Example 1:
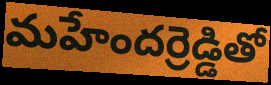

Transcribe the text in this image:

మహేందర్రెడ్డితో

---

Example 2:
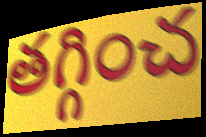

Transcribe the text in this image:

తగ్గించ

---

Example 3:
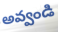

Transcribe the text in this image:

అవ్వండి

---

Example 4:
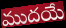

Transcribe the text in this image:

ముదయే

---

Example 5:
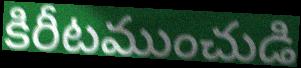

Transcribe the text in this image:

కిరీటముంచుడి